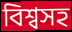
বিশ্বসহ